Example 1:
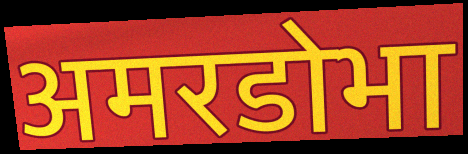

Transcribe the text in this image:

अमरडोभा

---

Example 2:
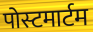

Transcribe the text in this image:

पोस्‍टमार्टम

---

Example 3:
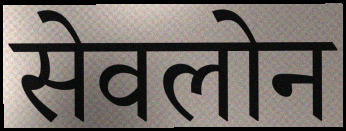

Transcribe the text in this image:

सेवलोन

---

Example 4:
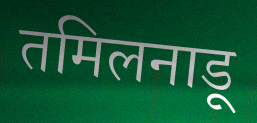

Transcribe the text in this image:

तमिलनाडू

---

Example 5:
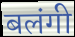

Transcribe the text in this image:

बलंगी